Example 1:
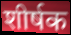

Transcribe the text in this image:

शीर्षक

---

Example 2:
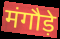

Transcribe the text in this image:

मंगौड़े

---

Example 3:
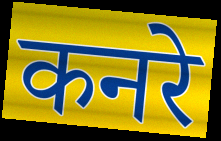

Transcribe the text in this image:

कनरे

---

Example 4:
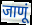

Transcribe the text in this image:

जाणूं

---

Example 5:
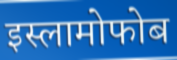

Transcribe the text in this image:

इस्लामोफोब